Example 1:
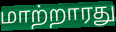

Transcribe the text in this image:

மாற்றாரது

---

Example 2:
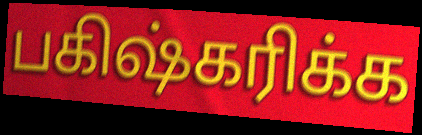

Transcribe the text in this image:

பகிஷ்கரிக்க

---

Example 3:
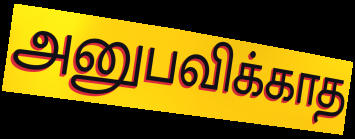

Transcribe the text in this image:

அனுபவிக்காத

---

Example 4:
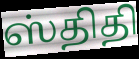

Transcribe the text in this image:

ஸ்திதி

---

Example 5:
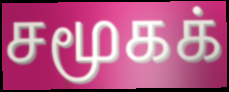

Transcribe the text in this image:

சமூகக்